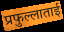
प्रफुल्लाताई